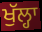
ਖੁੱਲ੍ਹਾ